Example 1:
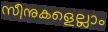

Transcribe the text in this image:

സീനുകളെല്ലാം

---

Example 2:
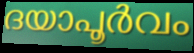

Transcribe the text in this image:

ദയാപൂർവം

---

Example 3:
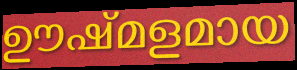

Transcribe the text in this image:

ഊഷ്‌മളമായ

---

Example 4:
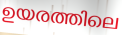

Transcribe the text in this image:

ഉയരത്തിലെ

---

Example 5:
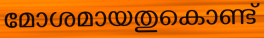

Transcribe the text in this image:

മോശമായതുകൊണ്ട്